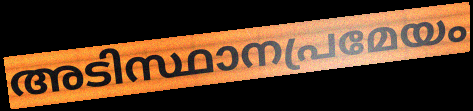
അടിസ്ഥാനപ്രമേയം